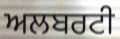
ਅਲਬਰਟੀ